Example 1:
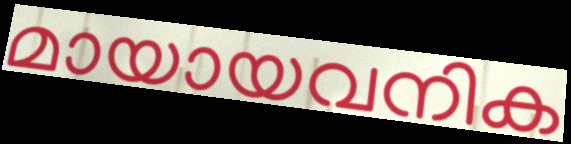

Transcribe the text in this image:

മായായവനിക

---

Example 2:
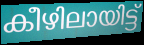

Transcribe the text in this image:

കീഴിലായിട്ട്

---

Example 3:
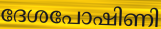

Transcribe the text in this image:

ദേശപോഷിണി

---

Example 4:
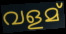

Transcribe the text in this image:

വളമ്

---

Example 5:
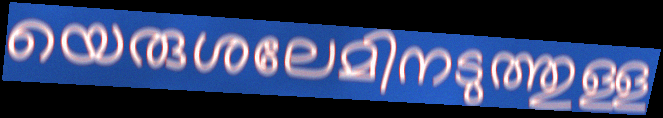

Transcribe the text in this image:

യെരുശലേമിനടുത്തുള്ള